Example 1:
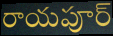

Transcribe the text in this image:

రాయపూర్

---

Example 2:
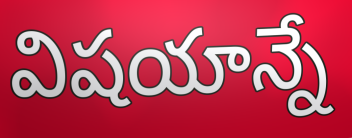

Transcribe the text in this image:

విషయాన్నే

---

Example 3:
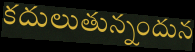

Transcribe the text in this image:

కదులుతున్నందున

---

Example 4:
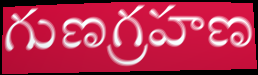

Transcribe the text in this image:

గుణగ్రహణ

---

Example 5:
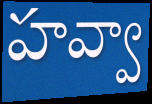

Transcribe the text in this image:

హవ్వా